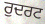
ਰੁਦਰਟ